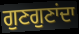
ਗੁਣਗੁਣਾਂਦਾ